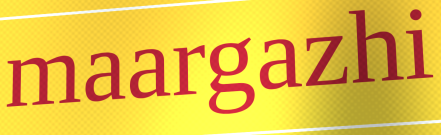
maargazhi